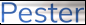
Pester